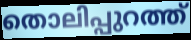
തൊലിപ്പുറത്ത്